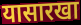
यासारखा